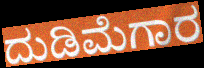
ದುಡಿಮೆಗಾರ